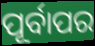
ପୂର୍ବାପର